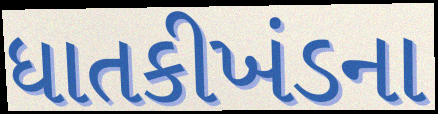
ધાતકીખંડના